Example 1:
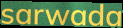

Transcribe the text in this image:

sarwada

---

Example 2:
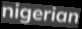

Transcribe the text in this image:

nigerian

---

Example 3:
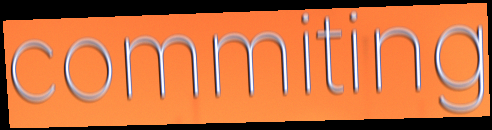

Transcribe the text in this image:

commiting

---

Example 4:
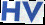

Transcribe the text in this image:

HV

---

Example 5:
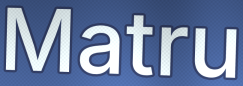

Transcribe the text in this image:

Matru